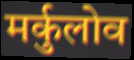
मर्कुलोव